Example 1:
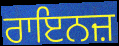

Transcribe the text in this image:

ਰਾਇਨਜ਼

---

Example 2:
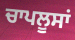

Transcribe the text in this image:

ਚਾਪਲੂਸਾਂ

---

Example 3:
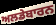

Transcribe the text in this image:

ਅਲਡੇਬਾਰਨ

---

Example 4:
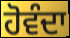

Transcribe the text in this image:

ਹੋਵੰਦਾ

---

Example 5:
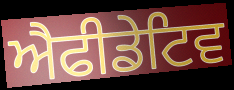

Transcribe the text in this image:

ਐਫੀਡੇਟਿਵ